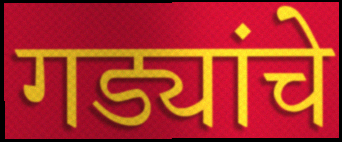
गड्यांचे